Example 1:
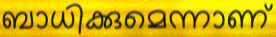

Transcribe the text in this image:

ബാധിക്കുമെന്നാണ്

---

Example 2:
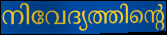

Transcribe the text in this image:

നിവേദ്യത്തിന്റെ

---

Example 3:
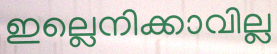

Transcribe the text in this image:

ഇല്ലെനിക്കാവില്ല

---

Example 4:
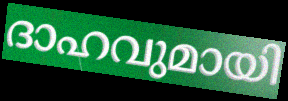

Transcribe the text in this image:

ദാഹവുമായി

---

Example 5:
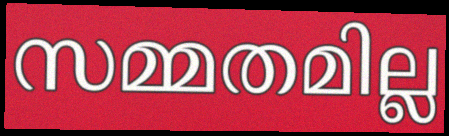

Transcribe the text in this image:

സമ്മതമില്ല